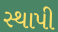
સ્થાપી